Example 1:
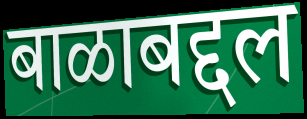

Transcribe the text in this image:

बाळाबद्दल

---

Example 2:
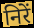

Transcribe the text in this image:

निरें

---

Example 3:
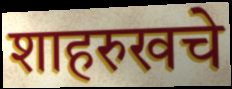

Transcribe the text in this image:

शाहरुखचे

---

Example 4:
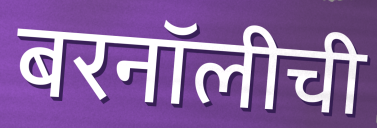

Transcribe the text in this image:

बरनॉलीची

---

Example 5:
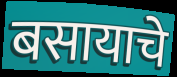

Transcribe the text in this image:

बसायाचे